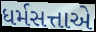
ધર્મસત્તાએ